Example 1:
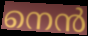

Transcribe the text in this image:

നെൻ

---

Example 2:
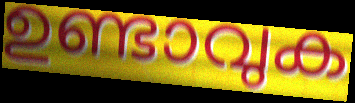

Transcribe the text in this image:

ഉണ്ടാവുക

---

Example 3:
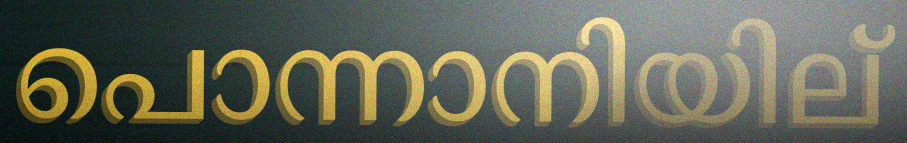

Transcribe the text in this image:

പൊന്നാനിയില്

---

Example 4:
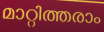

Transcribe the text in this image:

മാറ്റിത്തരാം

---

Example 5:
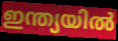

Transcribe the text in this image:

ഇന്ത്യയിൽ